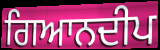
ਗਿਆਨਦੀਪ